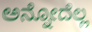
ಅನ್ನೋದೆಲ್ಲ